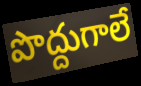
పొద్దుగాలే